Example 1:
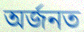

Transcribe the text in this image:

অৰ্জনত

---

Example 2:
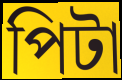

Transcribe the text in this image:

পিটা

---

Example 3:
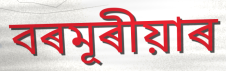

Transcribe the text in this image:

বৰমূৰীয়াৰ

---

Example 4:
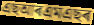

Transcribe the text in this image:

এছআৰএমএছৰ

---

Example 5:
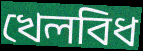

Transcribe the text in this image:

খেলবিধ